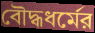
বৌদ্ধধর্মের